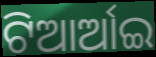
ଟିଆର୍ଆଇ